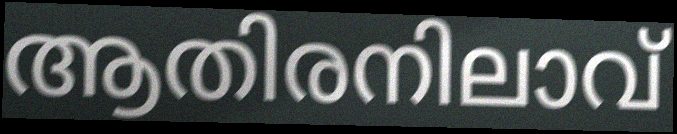
ആതിരനിലാവ്